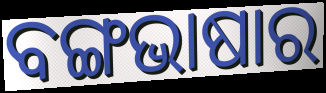
ବଙ୍ଗଭାଷାର